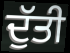
ਦੁੱਤੀ